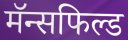
मॅन्सफिल्ड